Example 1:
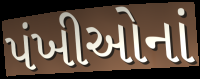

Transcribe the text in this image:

પંખીઓનાં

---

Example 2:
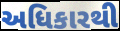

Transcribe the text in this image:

અધિકારથી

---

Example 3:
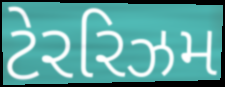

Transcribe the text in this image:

ટેરરિઝમ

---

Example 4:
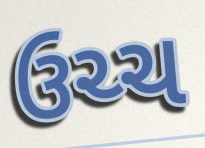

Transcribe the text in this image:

ઉચ્ચ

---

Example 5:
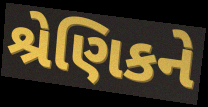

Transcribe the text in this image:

શ્રેણિકને